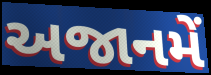
અજાનમેં